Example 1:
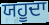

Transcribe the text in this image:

ਯਹੂਦਾ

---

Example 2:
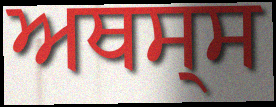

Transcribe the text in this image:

ਅਥਸ੍ਸ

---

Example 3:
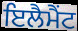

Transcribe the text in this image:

ਇਲੈਮੈਂਟ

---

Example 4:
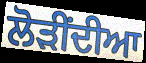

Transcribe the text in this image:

ਲੋੜੀਂਦੀਆ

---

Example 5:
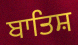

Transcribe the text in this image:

ਬਾਤਿਸ਼